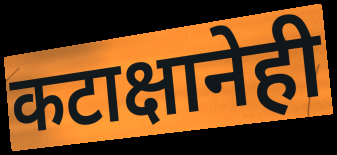
कटाक्षानेही